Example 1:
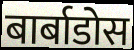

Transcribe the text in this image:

बार्बाडोस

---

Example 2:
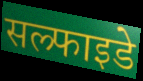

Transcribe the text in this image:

सल्फाइडे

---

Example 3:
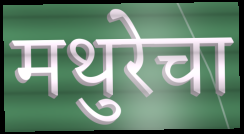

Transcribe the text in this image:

मथुरेचा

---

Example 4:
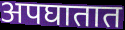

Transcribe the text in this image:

अपघातात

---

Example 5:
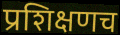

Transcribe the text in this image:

प्रशिक्षणच